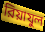
রিয়াযুল